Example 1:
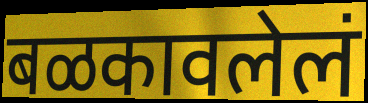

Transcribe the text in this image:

बळकावलेलं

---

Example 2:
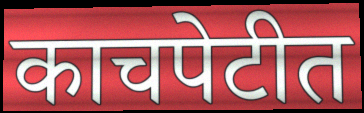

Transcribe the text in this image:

काचपेटीत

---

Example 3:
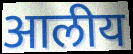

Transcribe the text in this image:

आलीय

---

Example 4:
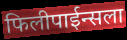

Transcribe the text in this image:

फिलीपाईन्सला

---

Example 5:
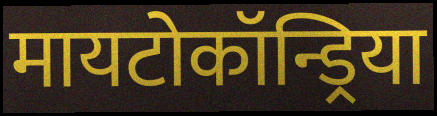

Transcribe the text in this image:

मायटोकॉन्ड्रिया